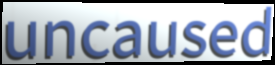
uncaused